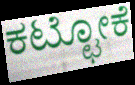
ಕಟ್ಟೋಕೆ